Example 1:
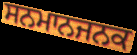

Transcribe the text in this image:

ਸਨਮਾਨਜਨਕ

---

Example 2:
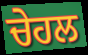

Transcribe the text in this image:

ਚੇਹਲ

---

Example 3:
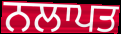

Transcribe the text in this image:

ਨਲਾਪਤ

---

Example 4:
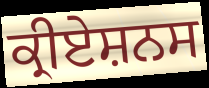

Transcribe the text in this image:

ਕ੍ਰੀਏਸ਼ਨਸ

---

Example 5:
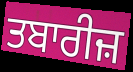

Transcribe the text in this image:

ਤਬਾਰੀਜ਼